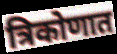
त्रिकोणात